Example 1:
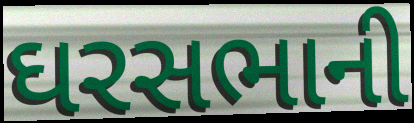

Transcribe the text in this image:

ઘરસભાની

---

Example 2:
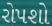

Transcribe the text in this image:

રોપશો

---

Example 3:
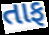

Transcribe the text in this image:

તાફ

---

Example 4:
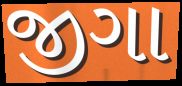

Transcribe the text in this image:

જીગા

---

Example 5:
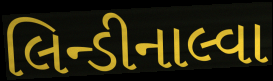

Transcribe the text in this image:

લિન્ડીનાલ્વા